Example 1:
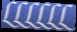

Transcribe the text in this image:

LLLLLL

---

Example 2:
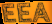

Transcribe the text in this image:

EEA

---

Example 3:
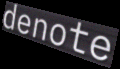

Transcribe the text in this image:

denote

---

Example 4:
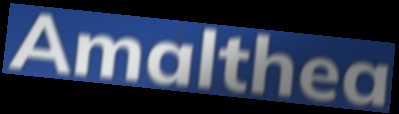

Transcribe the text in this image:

Amalthea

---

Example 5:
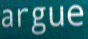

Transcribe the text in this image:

argue